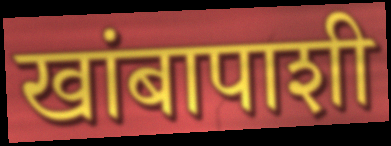
खांबापाशी